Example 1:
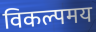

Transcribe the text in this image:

विकल्पमय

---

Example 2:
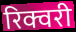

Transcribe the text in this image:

रिक्वरी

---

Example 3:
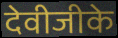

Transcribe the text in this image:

देवीजीके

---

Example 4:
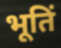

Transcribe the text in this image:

भूतिं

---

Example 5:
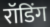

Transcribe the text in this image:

रॉडिंग